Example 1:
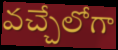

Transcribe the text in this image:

వచ్చేలోగా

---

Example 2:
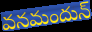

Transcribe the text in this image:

వనమందున్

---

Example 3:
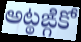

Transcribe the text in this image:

అట్ఠఙ్గికో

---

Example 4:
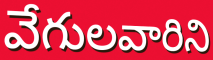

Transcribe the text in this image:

వేగులవారిని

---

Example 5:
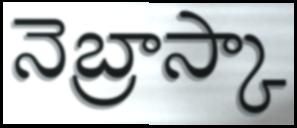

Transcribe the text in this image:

నెబ్రాస్కా